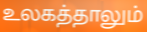
உலகத்தாலும்